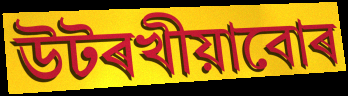
উটৰখীয়াবোৰ